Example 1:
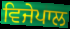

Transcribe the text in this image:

ਵਿਜੇਪਾਲ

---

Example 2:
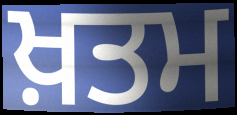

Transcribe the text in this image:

ਖ਼ਤਮ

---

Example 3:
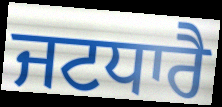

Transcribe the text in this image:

ਜਟਧਾਰੈ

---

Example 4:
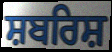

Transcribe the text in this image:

ਸ਼ਬਰਿਸ਼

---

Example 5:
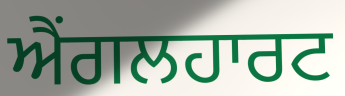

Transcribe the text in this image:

ਐਂਗਲਹਾਰਟ